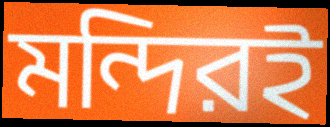
মন্দিরই